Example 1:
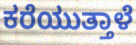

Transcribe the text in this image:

ಕರೆಯುತ್ತಾಳೆ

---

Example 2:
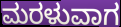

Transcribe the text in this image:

ಮರಳುವಾಗ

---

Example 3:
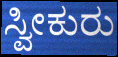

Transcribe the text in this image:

ಸ್ವೀಕುರು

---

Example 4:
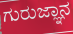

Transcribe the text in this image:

ಗುರುಜ್ಞಾನ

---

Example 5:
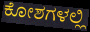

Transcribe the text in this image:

ಕೋಶಗಳಲ್ಲಿ